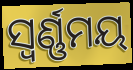
ସ୍ୱର୍ଣ୍ଣମୟ